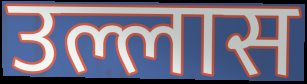
उल्‍लास